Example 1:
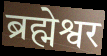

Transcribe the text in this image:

ब्रह्मेश्वर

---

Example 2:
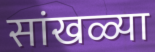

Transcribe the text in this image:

सांखळ्या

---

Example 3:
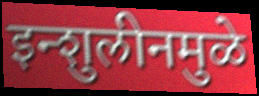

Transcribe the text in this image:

इन्शुलीनमुळे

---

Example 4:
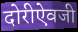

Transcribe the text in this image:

दोरीऐवजी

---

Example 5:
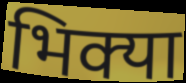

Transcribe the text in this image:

भिक्या